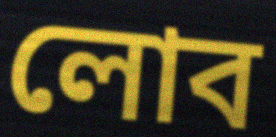
লোব